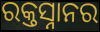
ରକ୍ତସ୍ନାନର